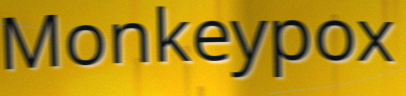
Monkeypox